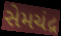
સેમચંદ્ર